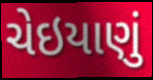
ચેઇયાણું